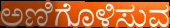
ಅಣಿಗೊಳಿಸುವ